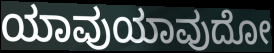
ಯಾವುಯಾವುದೋ